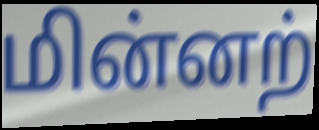
மின்னற்